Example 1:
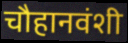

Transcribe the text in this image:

चौहानवंशी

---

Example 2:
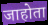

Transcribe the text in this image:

जाहोता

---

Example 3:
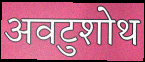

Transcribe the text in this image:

अवटुशोथ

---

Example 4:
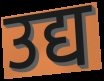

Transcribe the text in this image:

उद्य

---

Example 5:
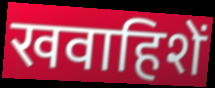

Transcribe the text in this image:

खवाहिशें